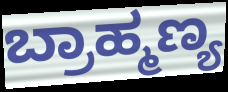
ಬ್ರಾಹ್ಮಣ್ಯ